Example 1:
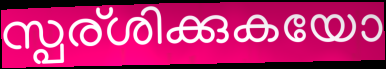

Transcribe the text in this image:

സ്പര്ശിക്കുകയോ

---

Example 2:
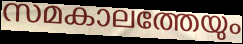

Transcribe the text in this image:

സമകാലത്തേയും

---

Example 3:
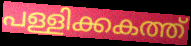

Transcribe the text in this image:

പള്ളിക്കകത്ത്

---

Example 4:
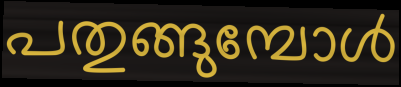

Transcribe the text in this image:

പതുങ്ങുമ്പോൾ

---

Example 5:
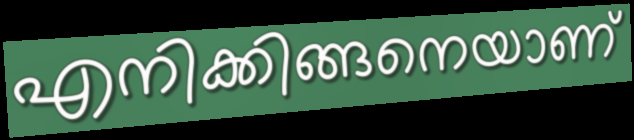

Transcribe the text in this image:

എനിക്കിങ്ങനെയാണ്